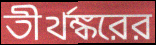
তীর্থঙ্করের